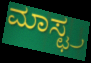
ಮಾಸ್ಟ್ರ